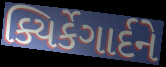
ક્યિર્કેગાર્દને